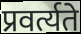
प्रवर्त्यते